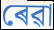
ৰেৱা